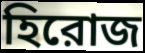
হিরোজ